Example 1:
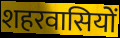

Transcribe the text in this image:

शहरवासियों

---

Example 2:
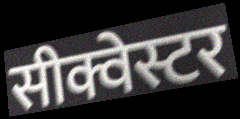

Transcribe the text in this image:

सीक्वेस्टर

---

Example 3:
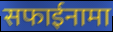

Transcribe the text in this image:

सफाईनामा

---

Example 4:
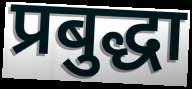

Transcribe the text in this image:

प्रबुद्धा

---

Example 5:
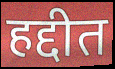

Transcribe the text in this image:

हद्दीत